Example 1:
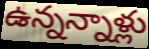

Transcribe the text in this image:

ఉన్నన్నాళ్లు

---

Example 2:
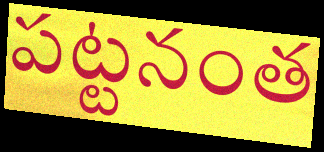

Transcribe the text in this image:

పట్టనంత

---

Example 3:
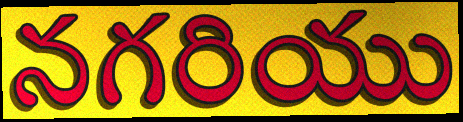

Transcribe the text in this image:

నగరియు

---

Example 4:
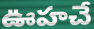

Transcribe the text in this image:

ఊహచే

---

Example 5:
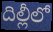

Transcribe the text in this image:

దిల్లీలో